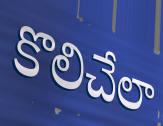
కొలిచేలా